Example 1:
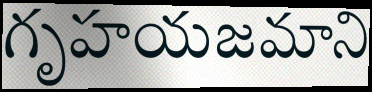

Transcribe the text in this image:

గృహయజమాని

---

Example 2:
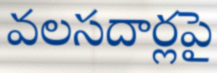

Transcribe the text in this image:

వలసదార్లపై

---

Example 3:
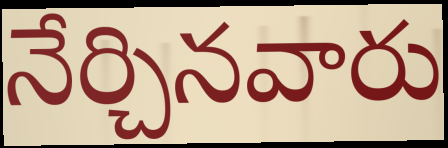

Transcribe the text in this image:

నేర్చినవారు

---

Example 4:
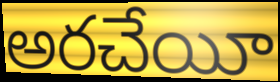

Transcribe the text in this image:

అరచేయీ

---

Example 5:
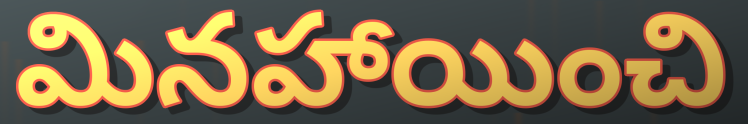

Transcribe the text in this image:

మినహాయించి